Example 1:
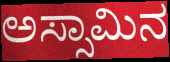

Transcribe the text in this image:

ಅಸ್ಸಾಮಿನ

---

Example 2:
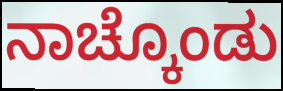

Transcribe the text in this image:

ನಾಚ್ಕೊಂಡು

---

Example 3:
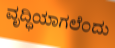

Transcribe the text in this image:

ವೃದ್ಧಿಯಾಗಲೆಂದು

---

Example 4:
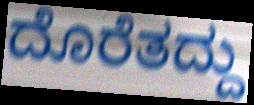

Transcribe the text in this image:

ದೊರೆತದ್ದು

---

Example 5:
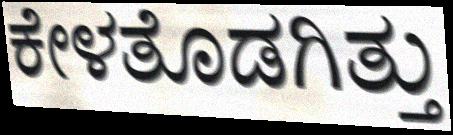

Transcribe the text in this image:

ಕೇಳತೊಡಗಿತ್ತು